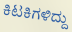
ಕಿಟಕಿಗಳಿದ್ದು